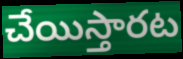
చేయిస్తారట